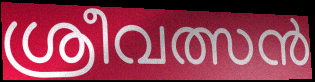
ശ്രീവത്സൻ